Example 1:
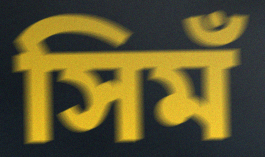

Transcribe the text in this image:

সিমঁ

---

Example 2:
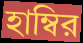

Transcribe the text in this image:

হাম্বির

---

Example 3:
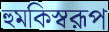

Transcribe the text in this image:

হুমকিস্বরূপ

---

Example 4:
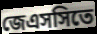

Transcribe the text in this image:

জেএসসিতে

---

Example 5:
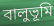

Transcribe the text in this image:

বালুভূমি